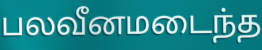
பலவீனமடைந்த